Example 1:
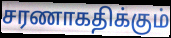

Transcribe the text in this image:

சரணாகதிக்கும்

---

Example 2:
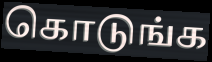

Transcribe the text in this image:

கொடுங்க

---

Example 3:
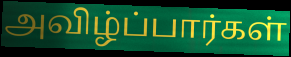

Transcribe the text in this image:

அவிழ்ப்பார்கள்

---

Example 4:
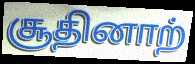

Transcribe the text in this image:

சூதினாற்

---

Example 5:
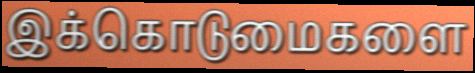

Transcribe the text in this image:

இக்கொடுமைகளை